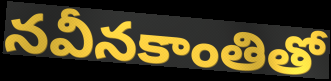
నవీనకాంతితో